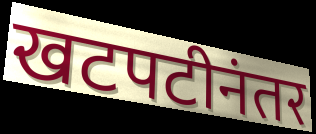
खटपटीनंतर